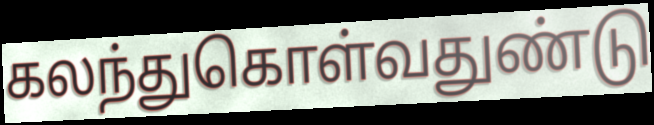
கலந்துகொள்வதுண்டு